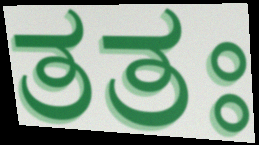
ತತಃ